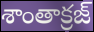
శాంతాక్రజ్